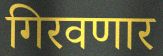
गिरवणार